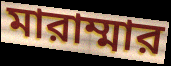
মারাম্মার